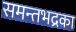
समन्तभद्रका